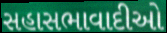
સહાસભાવાદીઓ